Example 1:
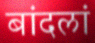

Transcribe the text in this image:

बांदलां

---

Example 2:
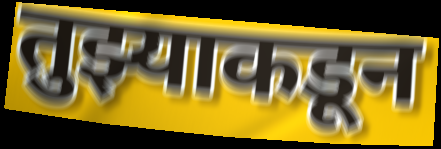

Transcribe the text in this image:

तुझ्याकडून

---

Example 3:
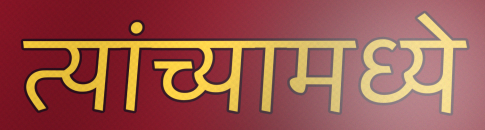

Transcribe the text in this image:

त्यांच्यामध्ये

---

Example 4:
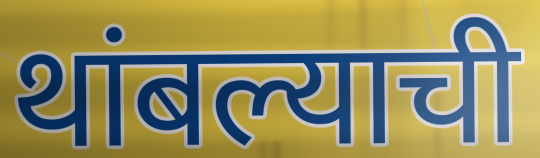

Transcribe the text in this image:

थांबल्याची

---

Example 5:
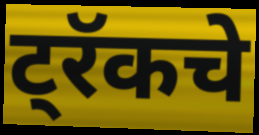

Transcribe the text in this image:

ट्रॅकचे